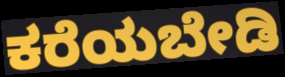
ಕರೆಯಬೇಡಿ